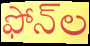
ఫోన్‌ల